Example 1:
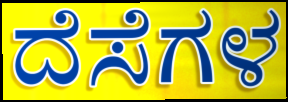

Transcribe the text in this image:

ದೆಸೆಗಳ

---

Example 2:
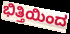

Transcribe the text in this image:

ಭಿತ್ತಿಯಿಂದ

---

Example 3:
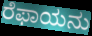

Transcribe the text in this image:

ರೆಫಾಯನು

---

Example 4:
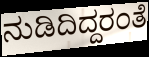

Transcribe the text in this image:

ನುಡಿದಿದ್ದರಂತೆ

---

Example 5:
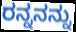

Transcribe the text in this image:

ರನ್ನನನ್ನು